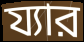
য্যার